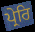
ਪ੍ਰੇਰਿ